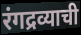
रंगद्रव्याची